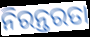
ନିରନ୍ତରତା